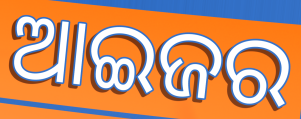
ଆଇଜର